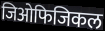
जिओफिजिकल